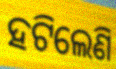
ହଟିଲେଣି